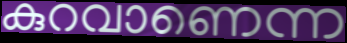
കുറവാണെന്ന